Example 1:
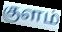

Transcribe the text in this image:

குளம்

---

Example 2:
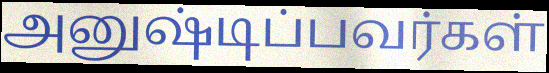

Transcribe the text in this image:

அனுஷ்டிப்பவர்கள்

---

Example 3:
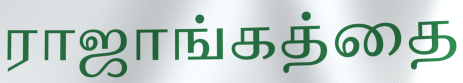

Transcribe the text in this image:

ராஜாங்கத்தை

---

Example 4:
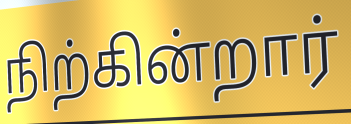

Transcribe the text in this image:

நிற்கின்றார்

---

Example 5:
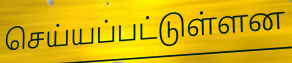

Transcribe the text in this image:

செய்யப்பட்டுள்ளன